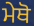
ਮੇਥੋ